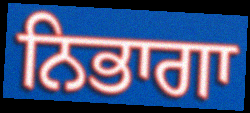
ਨਿਭਾਗਾ